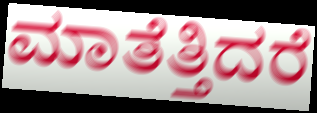
ಮಾತೆತ್ತಿದರೆ